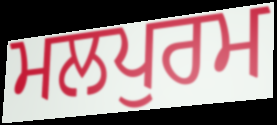
ਮਲਪੁਰਮ